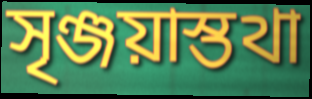
সৃঞ্জয়াস্তথা